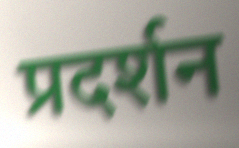
प्रदर्शन